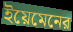
ইয়েমেনের